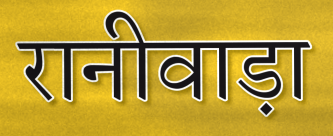
रानीवाड़ा